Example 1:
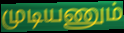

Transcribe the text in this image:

முடியணும்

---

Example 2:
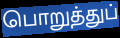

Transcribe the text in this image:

பொறுத்துப்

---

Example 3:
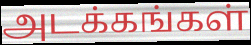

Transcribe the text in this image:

அடக்கங்கள்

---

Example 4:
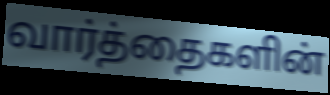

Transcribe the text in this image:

வார்த்தைகளின்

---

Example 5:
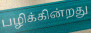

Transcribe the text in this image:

பழிக்கின்றது